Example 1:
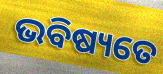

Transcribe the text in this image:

ଭବିଷ୍ୟତେ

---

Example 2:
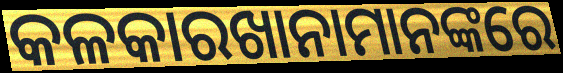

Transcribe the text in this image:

କଳକାରଖାନାମାନଙ୍କରେ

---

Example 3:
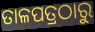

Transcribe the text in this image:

ତାଳପତ୍ରଠାରୁ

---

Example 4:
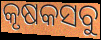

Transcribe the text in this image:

କୃଷକସବୁ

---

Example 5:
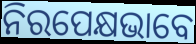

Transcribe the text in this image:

ନିରପେକ୍ଷଭାବେ